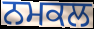
ਨਮਕਲ